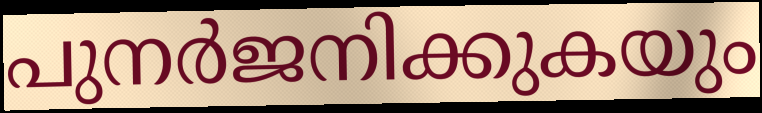
പുനർജനിക്കുകയും